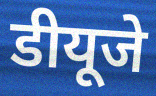
डीयूजे